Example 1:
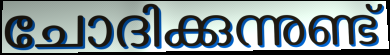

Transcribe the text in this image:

ചോദിക്കുന്നുണ്ട്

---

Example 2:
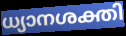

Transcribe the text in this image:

ധ്യാനശക്തി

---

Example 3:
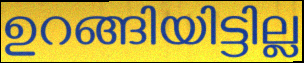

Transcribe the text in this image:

ഉറങ്ങിയിട്ടില്ല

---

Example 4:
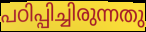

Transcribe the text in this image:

പഠിപ്പിച്ചിരുന്നതു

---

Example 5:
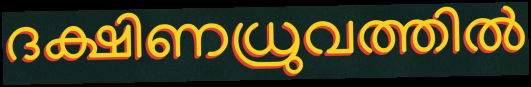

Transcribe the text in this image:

ദക്ഷിണധ്രുവത്തിൽ